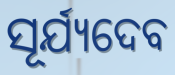
ସୂର୍ଯ୍ୟଦେବ